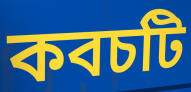
কবচটি